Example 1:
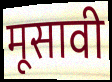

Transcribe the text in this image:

मूसावी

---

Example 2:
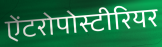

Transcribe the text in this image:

ऐंटरोपोस्टीरियर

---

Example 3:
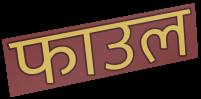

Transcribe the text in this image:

फाउल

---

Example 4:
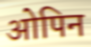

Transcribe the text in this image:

ओपिन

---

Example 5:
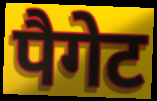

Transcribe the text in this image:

पैगेट